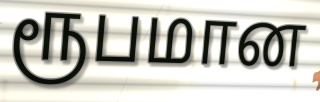
ரூபமான